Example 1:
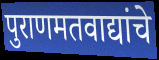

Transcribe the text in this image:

पुराणमतवाद्यांचे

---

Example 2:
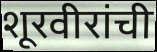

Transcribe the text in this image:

शूरवीरांची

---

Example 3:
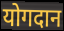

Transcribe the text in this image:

योगदान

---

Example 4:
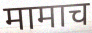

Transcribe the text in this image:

मामाच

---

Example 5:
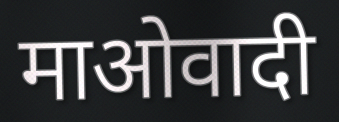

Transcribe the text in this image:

माओवादी